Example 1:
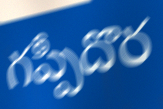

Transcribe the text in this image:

గప్పీదొర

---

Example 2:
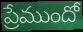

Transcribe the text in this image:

ప్రేముందో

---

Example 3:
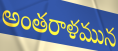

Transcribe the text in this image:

అంతరాళమున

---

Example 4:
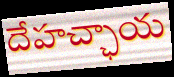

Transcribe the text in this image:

దేహచ్ఛాయ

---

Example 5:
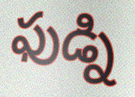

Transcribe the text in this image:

ఫుడ్ని